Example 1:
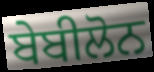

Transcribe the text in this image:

ਬੇਬੀਲੋਨ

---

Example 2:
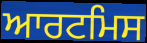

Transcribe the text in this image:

ਆਰਟਮਿਸ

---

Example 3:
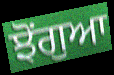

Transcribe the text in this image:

ਝੋਂਗੁਆ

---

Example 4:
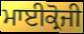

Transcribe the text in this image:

ਮਾਈਕ੍ਰੋਜੀ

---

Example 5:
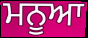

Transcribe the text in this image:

ਮਨੂਆ